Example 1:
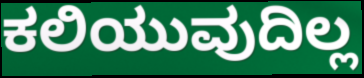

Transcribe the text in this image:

ಕಲಿಯುವುದಿಲ್ಲ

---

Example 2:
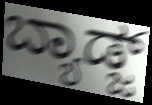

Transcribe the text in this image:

ಬ್ಯಾಡ್ಜ್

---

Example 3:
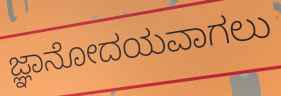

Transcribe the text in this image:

ಜ್ಞಾನೋದಯವಾಗಲು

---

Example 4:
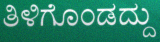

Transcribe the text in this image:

ತಿಳಿಗೊಂಡದ್ದು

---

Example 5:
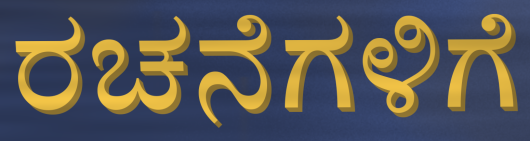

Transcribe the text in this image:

ರಚನೆಗಳಿಗೆ